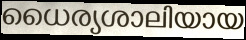
ധൈര്യശാലിയായ